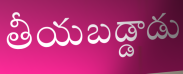
తీయబడ్డాడు